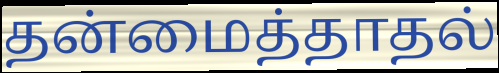
தன்மைத்தாதல்